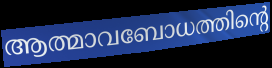
ആത്മാവബോധത്തിന്റെ